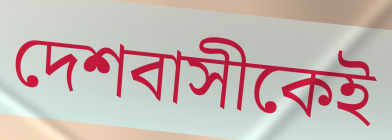
দেশবাসীকেই